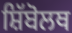
ਸ਼ਿੱਬੋਲਥ